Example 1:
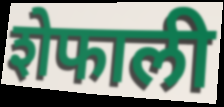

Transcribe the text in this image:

शेफाली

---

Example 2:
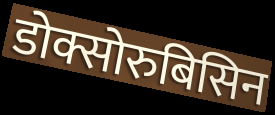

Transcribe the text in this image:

डोक्सोरुबिसिन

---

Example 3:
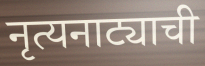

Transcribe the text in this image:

नृत्यनाट्याची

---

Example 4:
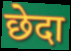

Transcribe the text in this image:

छेदा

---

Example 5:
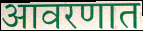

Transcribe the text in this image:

आवरणात